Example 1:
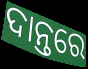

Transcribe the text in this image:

ଦାନ୍ତରେ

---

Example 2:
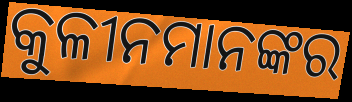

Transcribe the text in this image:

କୁଳୀନମାନଙ୍କର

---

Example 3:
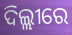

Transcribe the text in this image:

ଦିଲ୍ଲୀରେ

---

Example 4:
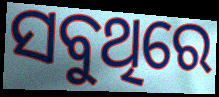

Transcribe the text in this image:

ସବୁଥିରେ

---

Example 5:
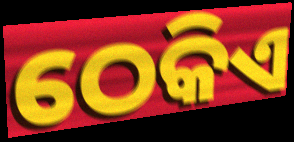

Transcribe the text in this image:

ଠେକିଏ